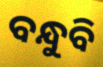
ବନ୍ଧୁବି